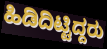
ಹಿಡಿದಿಟ್ಟಿದ್ದರು